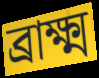
ব্রাক্ষ্ম